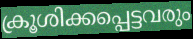
ക്രൂശിക്കപ്പെട്ടവരും